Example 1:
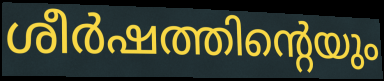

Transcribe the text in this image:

ശീർഷത്തിന്റെയും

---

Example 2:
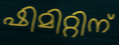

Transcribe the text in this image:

ഷിമിറ്റിന്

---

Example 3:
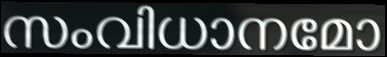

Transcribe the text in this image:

സംവിധാനമോ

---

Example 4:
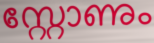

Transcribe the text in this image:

സ്റ്റോണും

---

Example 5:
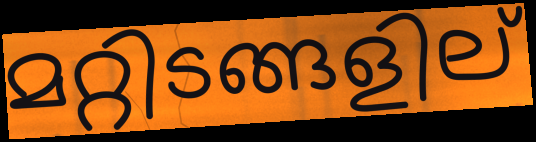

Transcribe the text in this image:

മറ്റിടങ്ങളില്